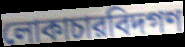
লোকাচারবিদগণ